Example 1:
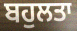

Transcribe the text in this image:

ਬਹੁਲਤਾ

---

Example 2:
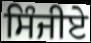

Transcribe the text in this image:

ਸਿੰਜੀਏ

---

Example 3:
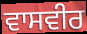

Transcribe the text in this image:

ਵਾਸਵੀਰ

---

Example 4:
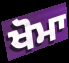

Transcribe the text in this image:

ਖੋਮਾ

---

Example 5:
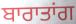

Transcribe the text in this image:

ਬਾਰਾਤਾਂਗ